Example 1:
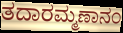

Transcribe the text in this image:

ತದಾರಮ್ಮಣಾನಂ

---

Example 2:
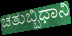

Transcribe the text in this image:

ಚತುಬ್ಬಿಧಾನಿ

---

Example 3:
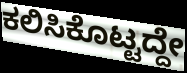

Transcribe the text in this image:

ಕಲಿಸಿಕೊಟ್ಟದ್ದೇ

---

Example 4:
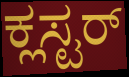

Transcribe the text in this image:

ಕ್ಲಸ್ಟರ್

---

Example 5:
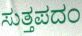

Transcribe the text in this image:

ಸುತ್ತಪದಂ